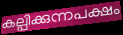
കല്പിക്കുന്നപക്ഷം